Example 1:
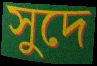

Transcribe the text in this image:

সুদে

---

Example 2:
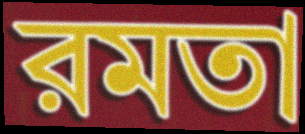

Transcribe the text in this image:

রমতা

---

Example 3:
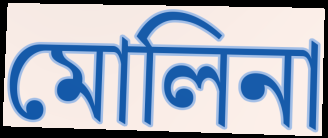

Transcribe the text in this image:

মোলিনা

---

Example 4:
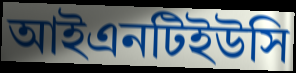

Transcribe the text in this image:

আইএনটিইউসি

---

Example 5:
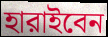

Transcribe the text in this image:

হারাইবেন